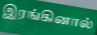
இரங்கினால்